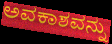
ಅವಕಾಶವನ್ನು